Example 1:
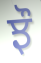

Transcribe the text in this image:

ਝੌ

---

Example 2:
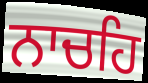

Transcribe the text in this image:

ਨਾਚਹਿ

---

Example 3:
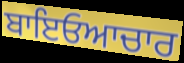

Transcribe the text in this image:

ਬਾਇਓਆਚਾਰ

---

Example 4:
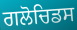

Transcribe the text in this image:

ਗਲੋਚਿਡਸ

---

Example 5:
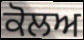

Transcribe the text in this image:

ਕੋਲਅ